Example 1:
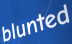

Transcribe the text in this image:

blunted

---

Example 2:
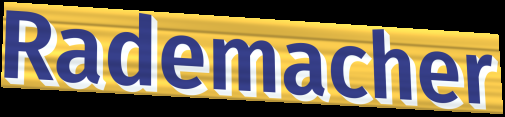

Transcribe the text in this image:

Rademacher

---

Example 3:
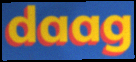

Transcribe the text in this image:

daag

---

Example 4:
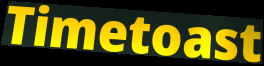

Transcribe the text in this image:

Timetoast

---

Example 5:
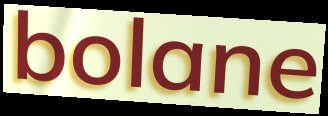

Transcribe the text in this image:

bolane